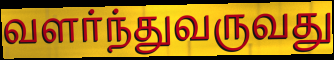
வளர்ந்துவருவது